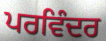
ਪਰਵਿੰਦਰ